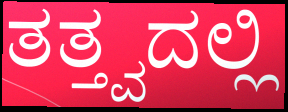
ತತ್ತ್ವದಲ್ಲಿ